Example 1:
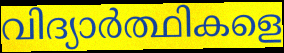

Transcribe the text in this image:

വിദ്യാർത്ഥികളെ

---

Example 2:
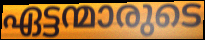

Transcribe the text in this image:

ഏട്ടന്മാരുടെ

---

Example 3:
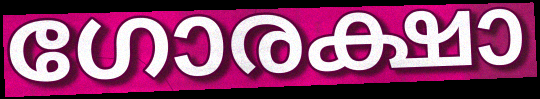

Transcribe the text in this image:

ഗോരക്ഷാ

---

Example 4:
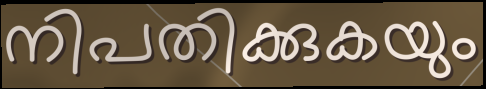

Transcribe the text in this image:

നിപതിക്കുകയും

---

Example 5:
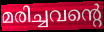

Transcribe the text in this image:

മരിച്ചവന്റെ